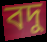
বদু